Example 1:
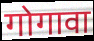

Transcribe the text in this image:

गोगावा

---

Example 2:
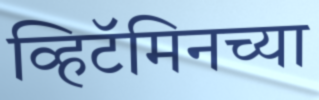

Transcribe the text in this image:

व्हिटॅमिनच्या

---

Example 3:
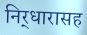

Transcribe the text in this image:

निर्धारासह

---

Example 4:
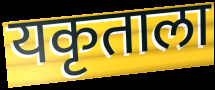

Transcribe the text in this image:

यकृताला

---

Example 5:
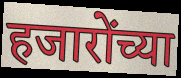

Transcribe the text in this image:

हजारोंच्या